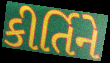
કીર્તિને